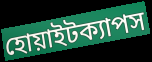
হোয়াইটক্যাপস